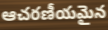
ఆచరణీయమైన